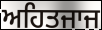
ਅਹਿਤਜਾਜ